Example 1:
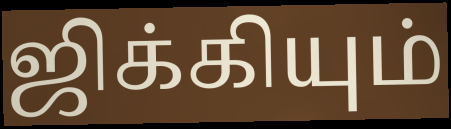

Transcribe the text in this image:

ஜிக்கியும்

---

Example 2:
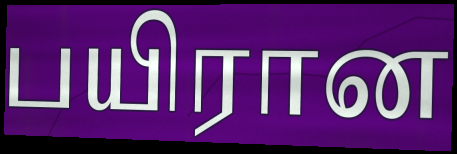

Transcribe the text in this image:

பயிரான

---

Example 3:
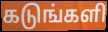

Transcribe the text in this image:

கடுங்களி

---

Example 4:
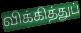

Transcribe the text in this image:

விக்கித்துப்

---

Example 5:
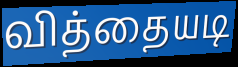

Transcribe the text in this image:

வித்தையடி